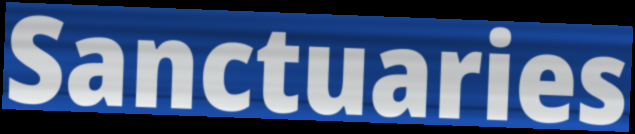
Sanctuaries